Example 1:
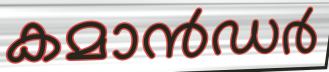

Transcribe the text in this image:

കമാൻഡർ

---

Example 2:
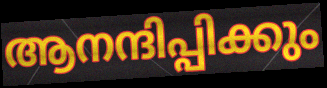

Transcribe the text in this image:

ആനന്ദിപ്പിക്കും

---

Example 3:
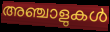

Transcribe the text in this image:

അഞ്ചാളുകൾ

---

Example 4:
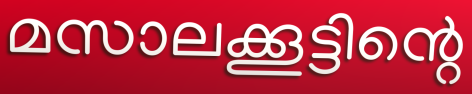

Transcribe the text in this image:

മസാലക്കൂട്ടിന്റെ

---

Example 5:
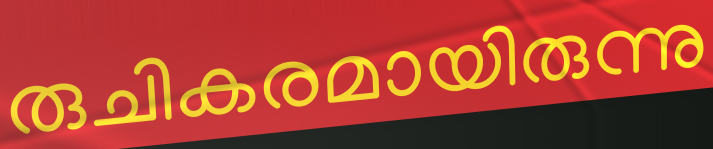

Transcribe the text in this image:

രുചികരമായിരുന്നു